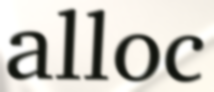
alloc